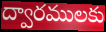
ద్వారములకు